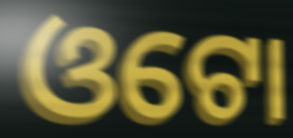
ଓଟୋ